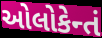
ઓલોકેન્તં